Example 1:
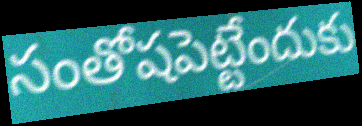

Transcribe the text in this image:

సంతోషపెట్టేందుకు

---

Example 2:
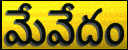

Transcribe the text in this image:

మేవేదం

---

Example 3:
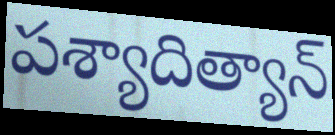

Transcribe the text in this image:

పశ్యాదిత్యాన్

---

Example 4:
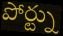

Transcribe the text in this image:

పోర్ట్ను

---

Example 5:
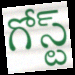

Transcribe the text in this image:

గోస్ట్